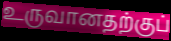
உருவானதற்குப்